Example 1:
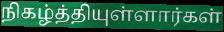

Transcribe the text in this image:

நிகழ்த்தியுள்ளார்கள்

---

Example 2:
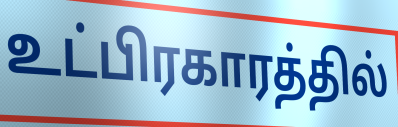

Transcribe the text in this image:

உட்பிரகாரத்தில்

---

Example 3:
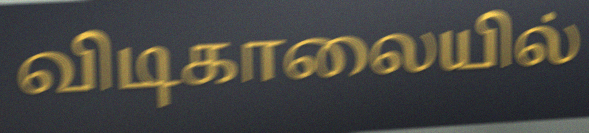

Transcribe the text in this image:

விடிகாலையில்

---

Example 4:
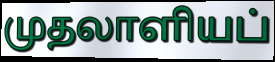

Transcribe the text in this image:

முதலாளியப்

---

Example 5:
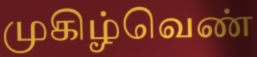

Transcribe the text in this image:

முகிழ்வெண்